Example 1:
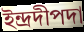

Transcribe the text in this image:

ইন্দ্রদীপদা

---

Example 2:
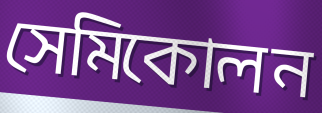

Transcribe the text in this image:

সেমিকোলন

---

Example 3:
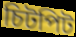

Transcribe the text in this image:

চিটপিট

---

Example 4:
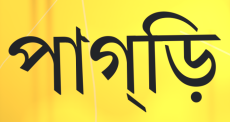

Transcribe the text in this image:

পাগ্ড়ি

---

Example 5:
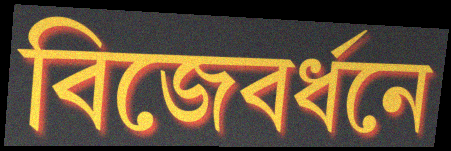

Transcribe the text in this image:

বিজেবর্ধনে